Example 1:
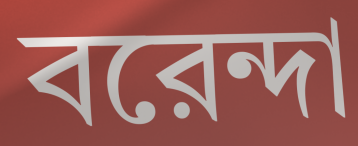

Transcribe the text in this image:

বরেন্দা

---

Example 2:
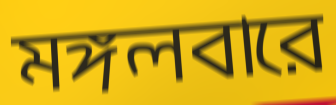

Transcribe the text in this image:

মঙ্গলবারে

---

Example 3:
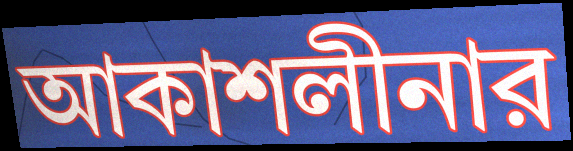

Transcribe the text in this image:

আকাশলীনার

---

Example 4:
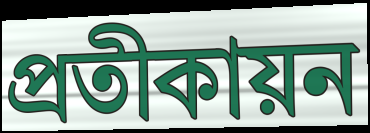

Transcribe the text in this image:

প্রতীকায়ন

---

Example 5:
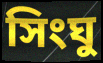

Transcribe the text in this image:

সিংঘু